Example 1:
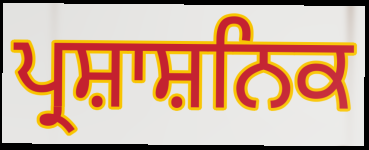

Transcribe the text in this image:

ਪ੍ਰਸ਼ਾਸ਼ਨਿਕ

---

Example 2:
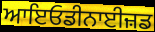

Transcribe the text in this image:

ਆਇਓਡੀਨਾਈਜ਼ਡ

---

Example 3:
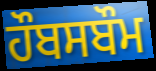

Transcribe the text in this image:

ਹੌਬਸਬੌਮ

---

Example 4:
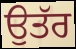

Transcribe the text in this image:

ਉਤੱਰ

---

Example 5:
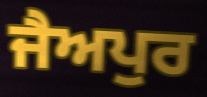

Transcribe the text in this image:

ਜੈਅਪੁਰ